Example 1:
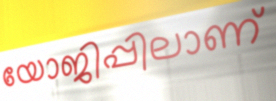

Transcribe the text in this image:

യോജിപ്പിലാണ്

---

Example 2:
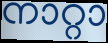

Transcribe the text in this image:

നാറ്റാ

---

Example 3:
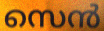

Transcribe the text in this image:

സെൻ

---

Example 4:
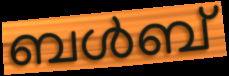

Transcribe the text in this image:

ബൾബ്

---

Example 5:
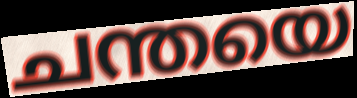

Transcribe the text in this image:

ചന്തയെ